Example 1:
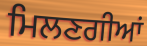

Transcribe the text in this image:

ਮਿਲਣਗੀਆਂ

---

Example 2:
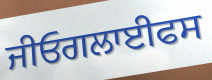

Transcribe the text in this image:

ਜੀਓਗਲਾਈਫਸ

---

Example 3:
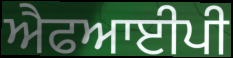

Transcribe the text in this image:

ਐਫਆਈਪੀ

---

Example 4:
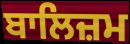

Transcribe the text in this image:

ਬਾਲਿਜ਼ਮ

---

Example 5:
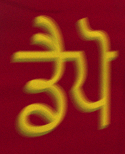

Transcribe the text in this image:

ਡੈਪੋ